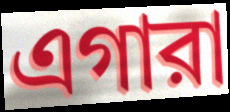
এগারা